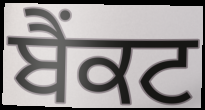
ਬੈਂਕਟ